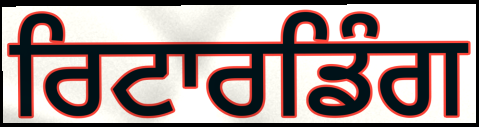
ਰਿਟਾਰਡਿੰਗ